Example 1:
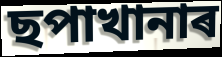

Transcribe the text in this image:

ছপাখানাৰ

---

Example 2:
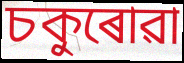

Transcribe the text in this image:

চকুৰোৱা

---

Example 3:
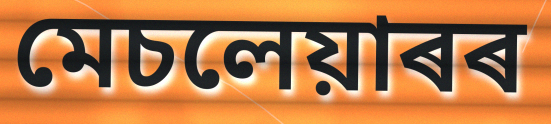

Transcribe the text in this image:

মেচলেয়াৰৰ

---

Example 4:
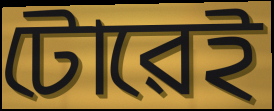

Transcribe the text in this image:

টোৱেই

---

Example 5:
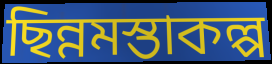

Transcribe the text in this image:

ছিন্নমস্তাকল্প